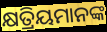
କ୍ଷତ୍ରିୟମାନଙ୍କ